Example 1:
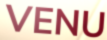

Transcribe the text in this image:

VENU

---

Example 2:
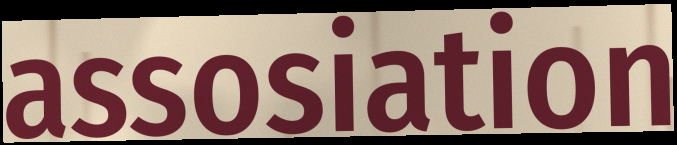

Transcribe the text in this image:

assosiation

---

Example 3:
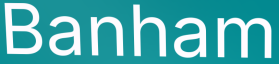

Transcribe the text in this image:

Banham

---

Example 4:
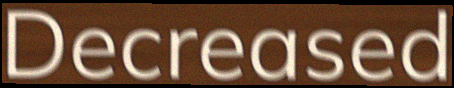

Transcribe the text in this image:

Decreased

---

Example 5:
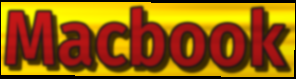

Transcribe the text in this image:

Macbook